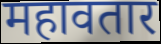
महावतार